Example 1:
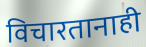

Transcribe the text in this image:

विचारतानाही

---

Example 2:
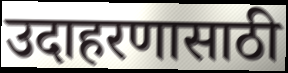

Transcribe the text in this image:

उदाहरणासाठी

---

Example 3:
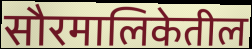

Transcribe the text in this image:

सौरमालिकेतील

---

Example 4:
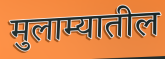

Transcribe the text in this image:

मुलाम्यातील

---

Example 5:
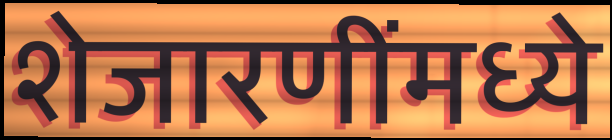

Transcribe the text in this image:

शेजारणींमध्ये